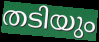
തടിയും